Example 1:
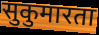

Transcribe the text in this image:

सुकुमारता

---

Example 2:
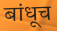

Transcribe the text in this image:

बांधूच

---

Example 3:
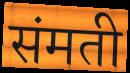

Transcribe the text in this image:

संमती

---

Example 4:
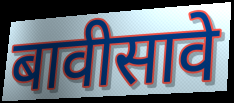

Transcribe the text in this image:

बावीसावे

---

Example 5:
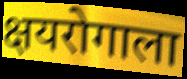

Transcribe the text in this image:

क्षयरोगाला